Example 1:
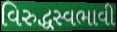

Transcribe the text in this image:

વિરુદ્ધસ્વભાવી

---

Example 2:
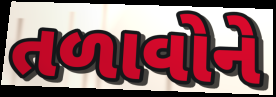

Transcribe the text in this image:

તળાવોને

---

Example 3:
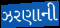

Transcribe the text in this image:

ઝરણાની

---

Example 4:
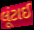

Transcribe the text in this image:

લૂંટાઈ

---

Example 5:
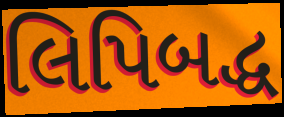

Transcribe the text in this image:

લિપિબદ્ધ